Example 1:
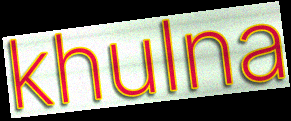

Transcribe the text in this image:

khulna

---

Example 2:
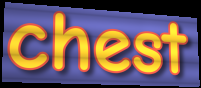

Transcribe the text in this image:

chest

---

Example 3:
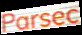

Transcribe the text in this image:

Parsec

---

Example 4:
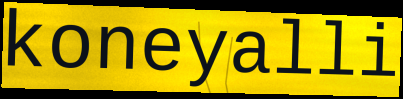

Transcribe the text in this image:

koneyalli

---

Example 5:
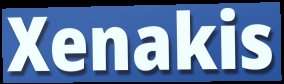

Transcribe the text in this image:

Xenakis